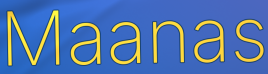
Maanas